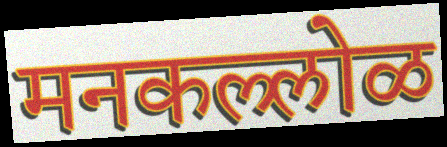
मनकल्लोळ